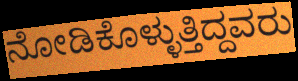
ನೋಡಿಕೊಳ್ಳುತ್ತಿದ್ದವರು